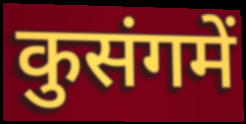
कुसंगमें